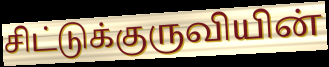
சிட்டுக்குருவியின்